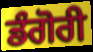
ਡੰਗੋਰੀ